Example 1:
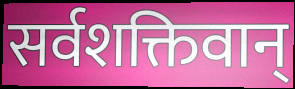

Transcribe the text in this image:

सर्वशक्तिवान्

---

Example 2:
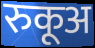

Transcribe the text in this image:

रुकूअ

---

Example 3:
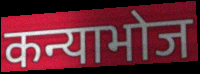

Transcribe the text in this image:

कन्याभोज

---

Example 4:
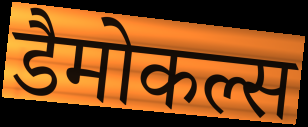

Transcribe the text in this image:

डैमोकल्स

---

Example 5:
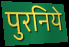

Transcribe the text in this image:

पुरनिये